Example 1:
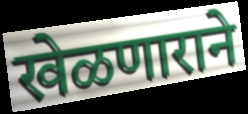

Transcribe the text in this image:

खेळणाराने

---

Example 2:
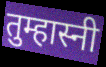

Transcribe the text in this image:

तुम्हास्नी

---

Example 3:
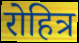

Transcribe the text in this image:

रोहित्र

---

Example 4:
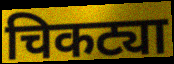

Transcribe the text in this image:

चिकट्या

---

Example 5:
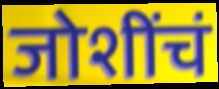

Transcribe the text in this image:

जोशींचं